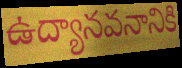
ఉద్యానవనానికి